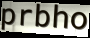
prbho